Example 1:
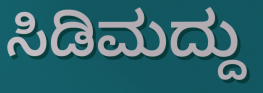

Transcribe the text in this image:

ಸಿಡಿಮದ್ದು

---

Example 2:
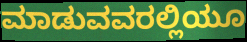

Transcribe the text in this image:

ಮಾಡುವವರಲ್ಲಿಯೂ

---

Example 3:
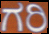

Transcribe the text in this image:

ಗರಿ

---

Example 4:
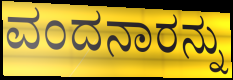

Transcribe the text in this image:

ವಂದನಾರನ್ನು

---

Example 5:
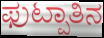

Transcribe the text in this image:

ಫುಟ್ಪಾತಿನ